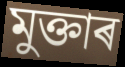
মুক্তাৰ